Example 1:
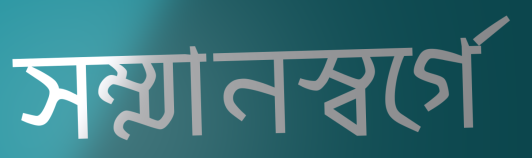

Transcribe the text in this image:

সম্মানস্বর্গে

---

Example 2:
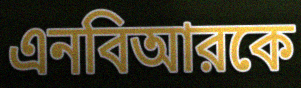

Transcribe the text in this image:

এনবিআরকে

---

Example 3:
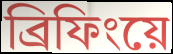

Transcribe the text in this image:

ব্রিফিংয়ে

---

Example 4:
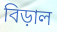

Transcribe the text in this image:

বিড়াল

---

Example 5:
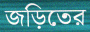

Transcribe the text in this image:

জড়িতের